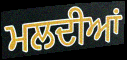
ਮਲਦੀਆਂ